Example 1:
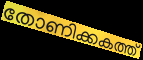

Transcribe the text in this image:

തോണിക്കകത്ത്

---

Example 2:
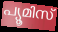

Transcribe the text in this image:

പ്യൂമിസ്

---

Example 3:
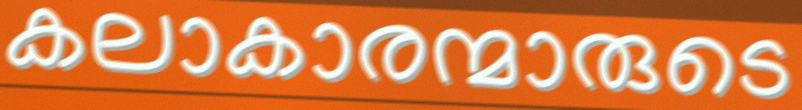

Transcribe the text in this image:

കലാകാരന്മാരുടെ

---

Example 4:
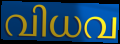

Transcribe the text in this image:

വിധവ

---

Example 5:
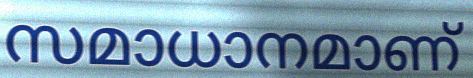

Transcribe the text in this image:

സമാധാനമാണ്